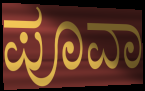
ಪೂವಾ